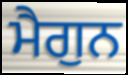
ਮੈਗੁਨ